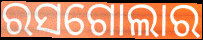
ରସଗୋଲାର